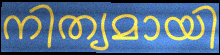
നിത്യമായി